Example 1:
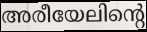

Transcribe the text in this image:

അരീയേലിന്റെ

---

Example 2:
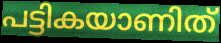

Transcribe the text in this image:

പട്ടികയാണിത്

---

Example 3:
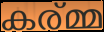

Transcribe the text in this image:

കര്മ്മ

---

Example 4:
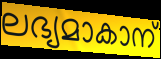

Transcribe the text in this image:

ലഭ്യമാകാന്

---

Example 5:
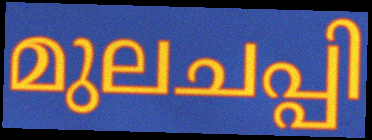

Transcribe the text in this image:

മുലചപ്പി